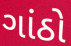
ગાંઠો